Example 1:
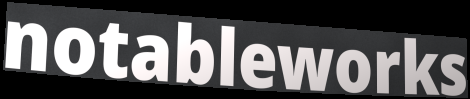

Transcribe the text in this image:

notableworks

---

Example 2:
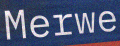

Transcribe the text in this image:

Merwe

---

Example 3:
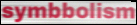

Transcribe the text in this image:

symbbolism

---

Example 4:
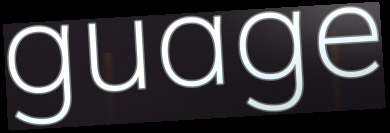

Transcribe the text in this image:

guage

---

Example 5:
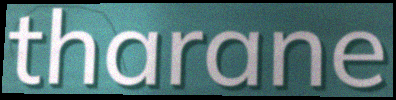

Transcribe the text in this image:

tharane